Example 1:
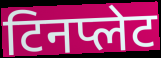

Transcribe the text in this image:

टिनप्लेट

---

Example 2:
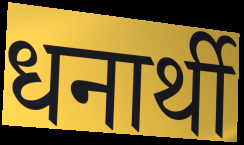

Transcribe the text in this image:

धनार्थी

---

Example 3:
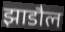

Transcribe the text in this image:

झाडौल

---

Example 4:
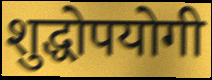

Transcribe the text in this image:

शुद्धोपयोगी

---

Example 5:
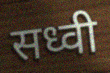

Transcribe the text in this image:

सध्वी